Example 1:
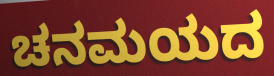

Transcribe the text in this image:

ಚನಮಯದ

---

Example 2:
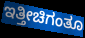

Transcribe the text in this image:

ಇತ್ತೀಚಿಗಂತೂ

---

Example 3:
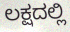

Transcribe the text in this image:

ಲಕ್ಷದಲ್ಲಿ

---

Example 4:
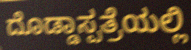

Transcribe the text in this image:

ದೊಡ್ಡಾಸ್ಪತ್ರೆಯಲ್ಲಿ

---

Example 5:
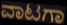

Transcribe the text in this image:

ವಾಟಗಾ